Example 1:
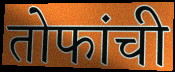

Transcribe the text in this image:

तोफांची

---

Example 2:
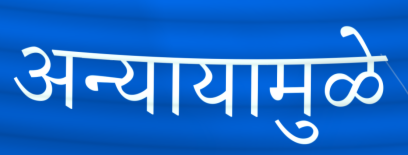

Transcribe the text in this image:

अन्यायामुळे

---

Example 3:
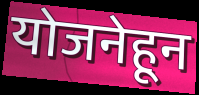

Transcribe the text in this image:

योजनेहून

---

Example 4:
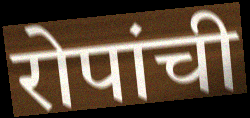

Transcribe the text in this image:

रोपांची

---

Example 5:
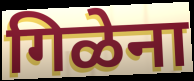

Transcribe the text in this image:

गिळेना